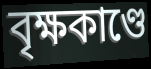
বৃক্ষকাণ্ডে